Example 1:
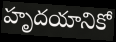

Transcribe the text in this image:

హృదయానికో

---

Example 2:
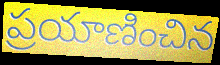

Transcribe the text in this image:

ప్రయాణించిన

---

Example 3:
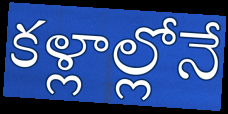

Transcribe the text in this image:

కళ్లాల్లోనే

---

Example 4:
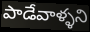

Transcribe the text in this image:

పాడేవాళ్ళని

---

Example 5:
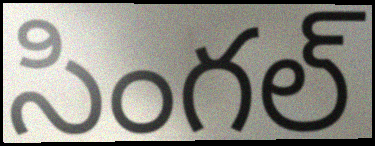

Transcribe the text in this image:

సింగల్